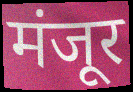
मंजूर